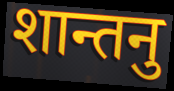
शान्तनु